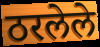
ठरलेले